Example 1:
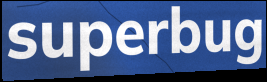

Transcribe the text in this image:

superbug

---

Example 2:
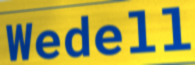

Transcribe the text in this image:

Wedell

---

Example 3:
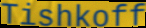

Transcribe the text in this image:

Tishkoff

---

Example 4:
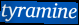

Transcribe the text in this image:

tyramine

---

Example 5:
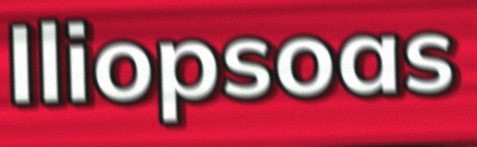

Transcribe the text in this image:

Iliopsoas